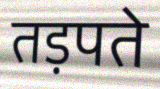
तड़पते